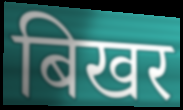
बिखर